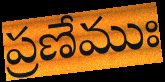
ప్రణేముః